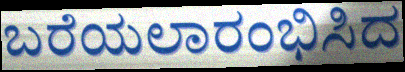
ಬರೆಯಲಾರಂಭಿಸಿದ